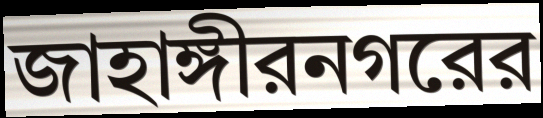
জাহাঙ্গীরনগরের